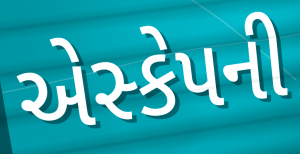
એસ્કેપની